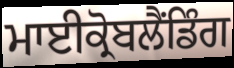
ਮਾਈਕ੍ਰੋਬਲੈਂਡਿੰਗ